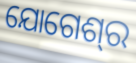
ଯୋଗେଶ୍‍ର